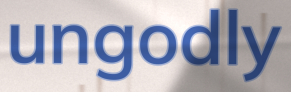
ungodly